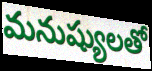
మనుష్యులతో